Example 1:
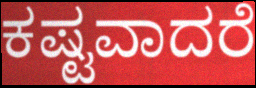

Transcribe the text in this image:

ಕಷ್ಟವಾದರೆ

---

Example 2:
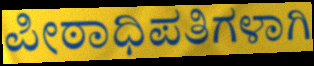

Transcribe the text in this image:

ಪೀಠಾಧಿಪತಿಗಳಾಗಿ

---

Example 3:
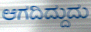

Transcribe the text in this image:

ಆಗದಿದ್ದುದು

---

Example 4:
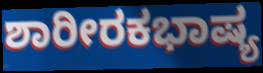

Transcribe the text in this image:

ಶಾರೀರಕಭಾಷ್ಯ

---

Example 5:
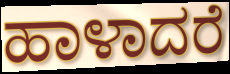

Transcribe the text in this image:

ಹಾಳಾದರೆ